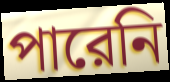
পারেনি